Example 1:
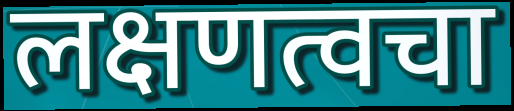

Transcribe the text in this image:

लक्षणत्वचा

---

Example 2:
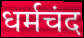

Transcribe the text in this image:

धर्मचंद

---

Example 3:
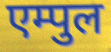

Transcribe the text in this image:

एम्पुल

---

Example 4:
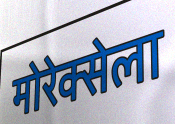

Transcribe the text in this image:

मोरेक्सेला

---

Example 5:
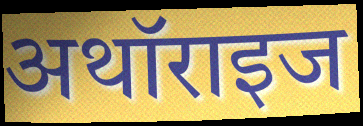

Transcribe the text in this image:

अथॉराइज